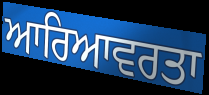
ਆਰਿਆਵਰਤਾ